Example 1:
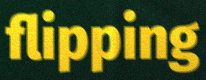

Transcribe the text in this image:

flipping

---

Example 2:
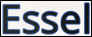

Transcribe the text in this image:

Essel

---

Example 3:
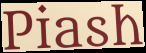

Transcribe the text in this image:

Piash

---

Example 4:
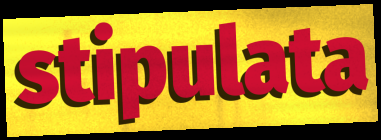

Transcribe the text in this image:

stipulata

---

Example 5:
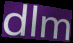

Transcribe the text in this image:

dlm